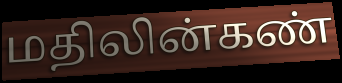
மதிலின்கண்